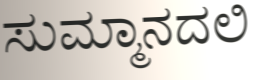
ಸುಮ್ಮಾನದಲಿ